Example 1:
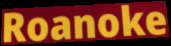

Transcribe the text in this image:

Roanoke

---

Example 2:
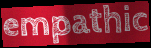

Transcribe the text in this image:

empathic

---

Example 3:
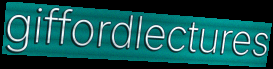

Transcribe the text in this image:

giffordlectures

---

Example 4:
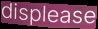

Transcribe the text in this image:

displease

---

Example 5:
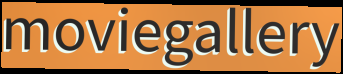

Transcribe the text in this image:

moviegallery